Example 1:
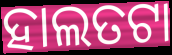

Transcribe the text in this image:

ହାଲତଟା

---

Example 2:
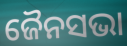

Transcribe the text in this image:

ଜୈନସଭା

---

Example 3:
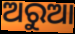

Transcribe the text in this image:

ଅରୁଆ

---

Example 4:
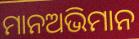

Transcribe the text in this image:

ମାନଅଭିମାନ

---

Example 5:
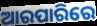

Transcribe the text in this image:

ଆରପାରିରେ